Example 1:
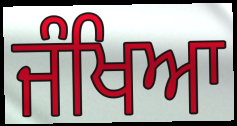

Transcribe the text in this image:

ਜੰਖਿਆ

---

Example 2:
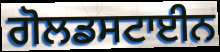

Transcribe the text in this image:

ਗੋਲਡਸਟਾਈਨ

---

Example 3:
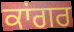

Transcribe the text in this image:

ਕਾਂਗਰ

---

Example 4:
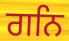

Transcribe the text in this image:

ਗਨਿ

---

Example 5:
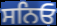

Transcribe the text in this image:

ਸਨਿਓ